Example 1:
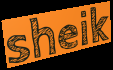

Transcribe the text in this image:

sheik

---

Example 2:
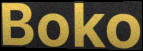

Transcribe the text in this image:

Boko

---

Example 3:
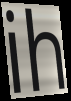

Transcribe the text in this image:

ih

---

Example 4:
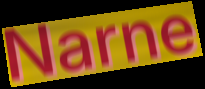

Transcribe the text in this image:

Narne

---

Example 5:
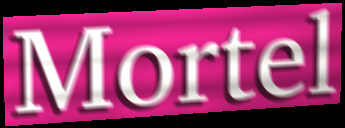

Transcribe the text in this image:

Mortel